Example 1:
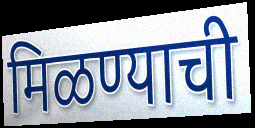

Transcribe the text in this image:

मिळण्याची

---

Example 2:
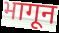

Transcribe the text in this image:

भागून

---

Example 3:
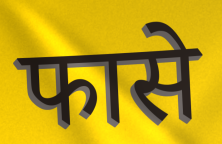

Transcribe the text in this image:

फासे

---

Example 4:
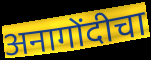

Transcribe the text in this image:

अनागोंदीचा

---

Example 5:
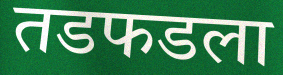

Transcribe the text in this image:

तडफडला